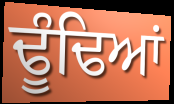
ਢੂੰਢਿਆਂ